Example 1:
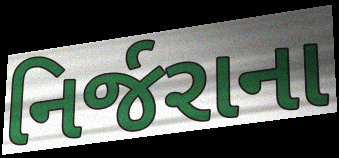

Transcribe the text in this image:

નિર્જરાના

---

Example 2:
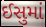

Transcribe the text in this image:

ઈસુમાં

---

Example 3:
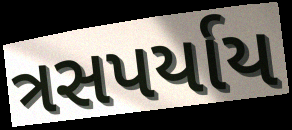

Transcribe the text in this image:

ત્રસપર્યાય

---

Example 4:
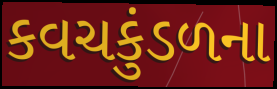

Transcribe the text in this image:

કવચકુંડળના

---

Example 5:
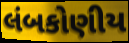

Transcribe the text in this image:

લંબકોણીય